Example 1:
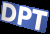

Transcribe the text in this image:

DPT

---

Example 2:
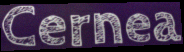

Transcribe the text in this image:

Cernea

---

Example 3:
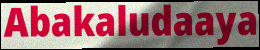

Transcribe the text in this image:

Abakaludaaya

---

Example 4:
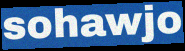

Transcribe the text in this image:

sohawjo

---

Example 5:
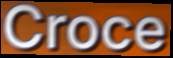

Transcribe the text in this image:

Croce